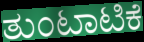
ತುಂಟಾಟಿಕೆ